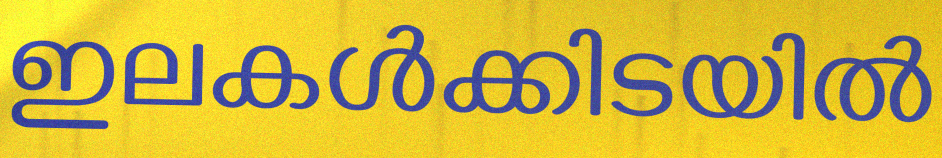
ഇലകൾക്കിടയിൽ